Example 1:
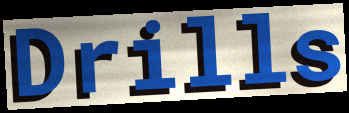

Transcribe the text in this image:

Drills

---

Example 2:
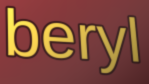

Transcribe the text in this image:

beryl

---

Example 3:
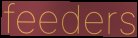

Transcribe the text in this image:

feeders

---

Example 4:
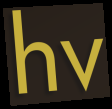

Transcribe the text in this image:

hv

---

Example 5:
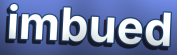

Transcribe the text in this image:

imbued